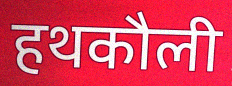
हथकौली